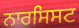
ਨਾਰਸਿਸਟ